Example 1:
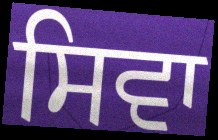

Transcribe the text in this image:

ਸਿਵਾ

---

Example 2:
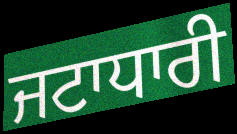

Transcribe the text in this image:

ਜਟਾਧਾਰੀ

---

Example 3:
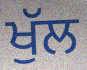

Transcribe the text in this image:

ਖੁੱਲ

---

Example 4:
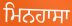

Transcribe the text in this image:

ਮਿਨਹਾਸਾ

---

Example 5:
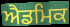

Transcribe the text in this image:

ਐਡਮਿਕ